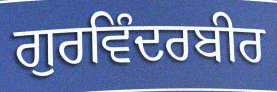
ਗੁਰਵਿੰਦਰਬੀਰ